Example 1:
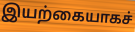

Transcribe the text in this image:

இயற்கையாகச்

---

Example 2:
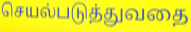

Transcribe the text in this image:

செயல்படுத்துவதை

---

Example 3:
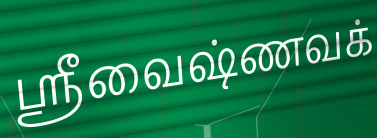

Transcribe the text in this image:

ஸ்ரீவைஷ்ணவக்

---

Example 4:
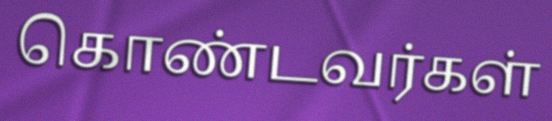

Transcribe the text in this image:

கொண்டவர்கள்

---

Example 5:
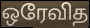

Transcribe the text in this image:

ஒரேவித